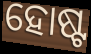
ହୋଷ୍ଟ